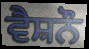
ਵੈਸ਼ਨੌ